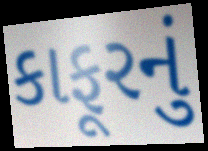
કાફૂરનું